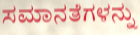
ಸಮಾನತೆಗಳನ್ನು